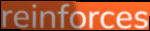
reinforces